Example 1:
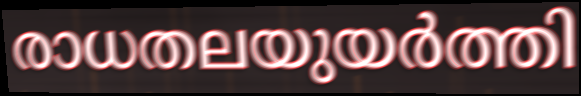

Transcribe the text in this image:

രാധതലയുയർത്തി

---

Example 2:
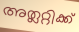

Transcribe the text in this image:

അത്ലറ്റിക്ക്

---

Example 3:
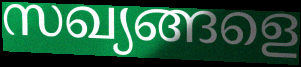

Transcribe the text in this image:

സഖ്യങ്ങളെ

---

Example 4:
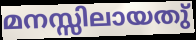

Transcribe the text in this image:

മനസ്സിലായതു്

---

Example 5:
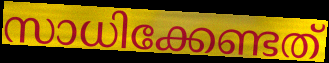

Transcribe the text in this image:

സാധിക്കേണ്ടത്